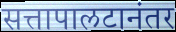
सत्तापालटानंतर